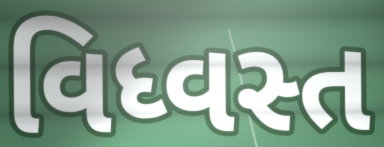
વિધ્વસ્ત